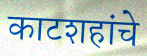
काटशहांचे